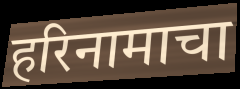
हरिनामाचा